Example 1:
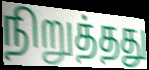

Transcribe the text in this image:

நிறுத்தது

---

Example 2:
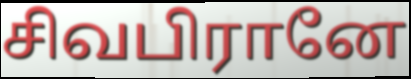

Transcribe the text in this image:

சிவபிரானே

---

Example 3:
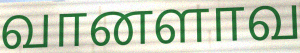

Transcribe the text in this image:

வானளாவ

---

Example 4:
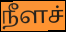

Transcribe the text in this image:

நீளச்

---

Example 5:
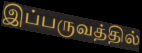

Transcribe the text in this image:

இப்பருவத்தில்